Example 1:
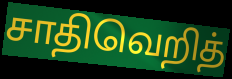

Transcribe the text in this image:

சாதிவெறித்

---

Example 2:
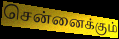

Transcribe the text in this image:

சென்னைக்கும்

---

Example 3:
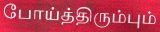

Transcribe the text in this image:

போய்த்திரும்பும்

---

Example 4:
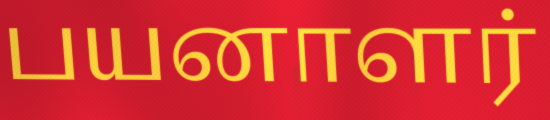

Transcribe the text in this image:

பயனாளர்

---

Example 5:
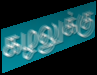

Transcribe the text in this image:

கழலுக்கு